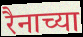
रैनाच्या